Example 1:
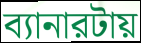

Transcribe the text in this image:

ব্যানারটায়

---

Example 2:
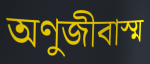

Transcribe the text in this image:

অণুজীবাস্ম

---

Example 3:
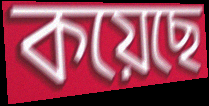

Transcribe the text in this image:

কয়েছে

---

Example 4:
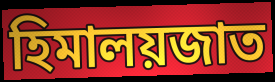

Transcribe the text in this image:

হিমালয়জাত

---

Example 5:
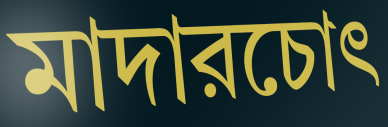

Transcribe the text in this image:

মাদারচোৎ